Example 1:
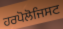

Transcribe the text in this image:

ਹਰਪੋਲੋਜਿਸਟ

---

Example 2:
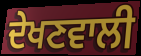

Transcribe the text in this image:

ਦੇਖਣਵਾਲੀ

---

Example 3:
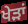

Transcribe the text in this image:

ਖੇੜਾਂ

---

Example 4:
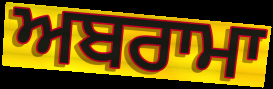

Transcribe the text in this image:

ਅਬਰਾਮਾ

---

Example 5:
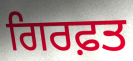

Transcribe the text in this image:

ਗਿਰਫ਼ਤ